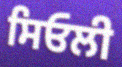
ਸਿਓਲੀ